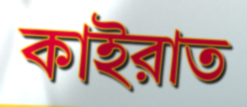
কাইরাত